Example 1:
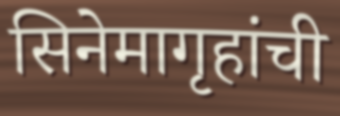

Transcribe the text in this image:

सिनेमागृहांची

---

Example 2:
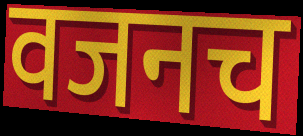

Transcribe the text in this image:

वजनच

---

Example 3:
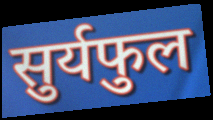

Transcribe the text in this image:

सुर्यफुल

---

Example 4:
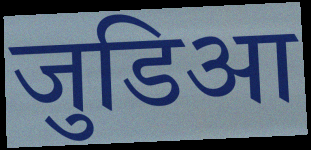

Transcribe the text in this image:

जुडिआ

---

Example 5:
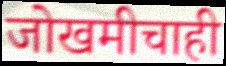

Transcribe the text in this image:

जोखमीचाही